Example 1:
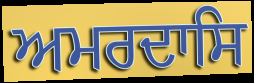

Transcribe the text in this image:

ਅਮਰਦਾਸਿ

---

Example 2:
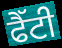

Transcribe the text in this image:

ਫੈੱਟੀ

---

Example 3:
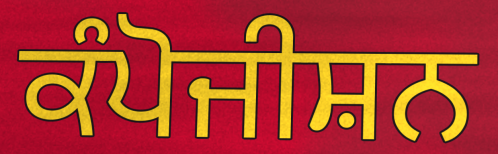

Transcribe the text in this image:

ਕੰਪੋਜੀਸ਼ਨ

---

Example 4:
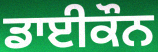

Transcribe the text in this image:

ਡਾਈਕੌਨ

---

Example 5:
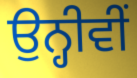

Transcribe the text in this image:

ਉਨ੍ਹੀਵੀਂ